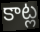
కాట్ల